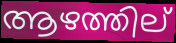
ആഴത്തില്